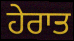
ਹੇਰਾਤ